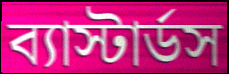
ব্যাস্টার্ডস